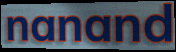
nanand